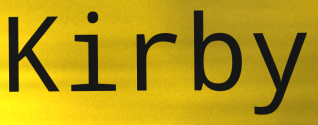
Kirby